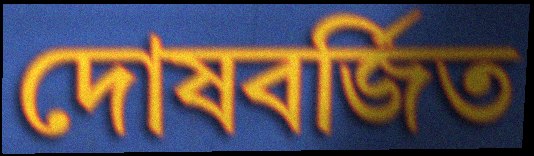
দোষবর্জিত